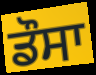
ਡੌਸਾ